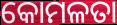
କୋମଳତା